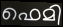
ഫെമി